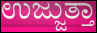
ಉಜ್ಜುತ್ತಾ